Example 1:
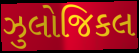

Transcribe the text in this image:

ઝુલોજિકલ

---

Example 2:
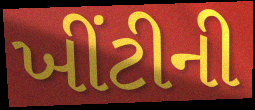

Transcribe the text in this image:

ખીંટીની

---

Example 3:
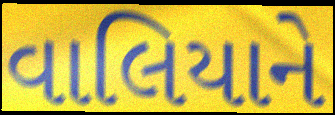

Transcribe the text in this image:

વાલિયાને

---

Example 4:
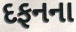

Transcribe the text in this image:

દફનના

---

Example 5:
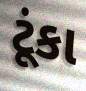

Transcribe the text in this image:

ટૂંકા